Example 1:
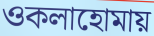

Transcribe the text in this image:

ওকলাহোমায়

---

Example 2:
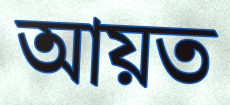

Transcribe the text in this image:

আয়ত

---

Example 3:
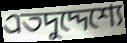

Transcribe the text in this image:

এতদুদ্দেশ্যে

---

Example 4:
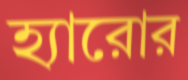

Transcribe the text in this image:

হ্যারোর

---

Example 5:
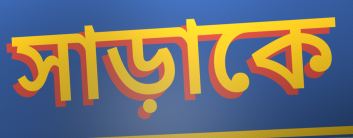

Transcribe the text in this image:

সাড়াকে